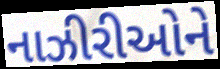
નાઝીરીઓને